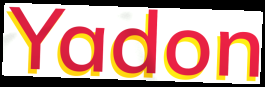
Yadon